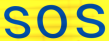
sos